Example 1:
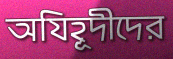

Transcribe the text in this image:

অযিহূদীদের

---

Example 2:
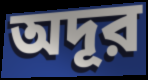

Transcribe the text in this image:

অদূর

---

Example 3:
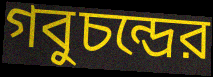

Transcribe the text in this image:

গবুচন্দ্রের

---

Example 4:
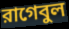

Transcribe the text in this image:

রাগেবুল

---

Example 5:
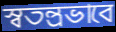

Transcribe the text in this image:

স্বতন্ত্রভাবে